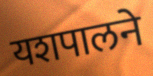
यशपालने